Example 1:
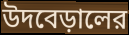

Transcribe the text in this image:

উদবেড়ালের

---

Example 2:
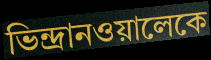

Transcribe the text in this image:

ভিন্দ্রানওয়ালেকে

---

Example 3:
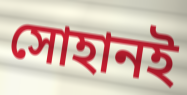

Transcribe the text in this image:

সোহানই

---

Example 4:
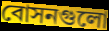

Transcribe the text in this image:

বোসনগুলো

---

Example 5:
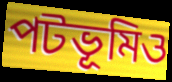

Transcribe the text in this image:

পটভূমিও